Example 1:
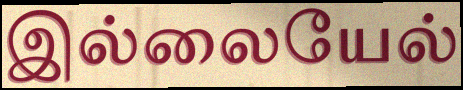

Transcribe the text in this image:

இல்லையேல்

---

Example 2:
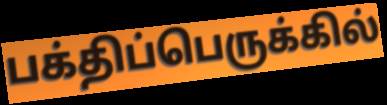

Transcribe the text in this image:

பக்திப்பெருக்கில்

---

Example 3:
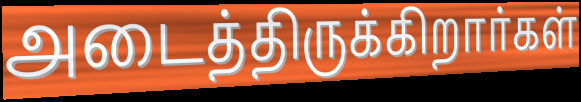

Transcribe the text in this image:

அடைத்திருக்கிறார்கள்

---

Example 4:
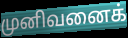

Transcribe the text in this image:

முனிவனைக்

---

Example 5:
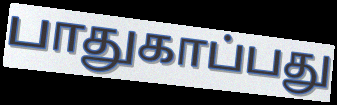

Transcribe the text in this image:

பாதுகாப்பது